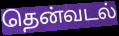
தென்வடல்